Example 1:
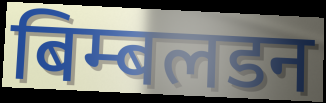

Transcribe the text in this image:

बिम्बलडन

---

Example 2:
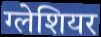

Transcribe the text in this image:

ग्‍लेशियर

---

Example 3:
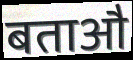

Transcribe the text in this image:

बताऔ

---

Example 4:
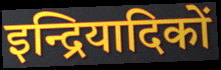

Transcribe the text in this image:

इन्द्रियादिकों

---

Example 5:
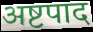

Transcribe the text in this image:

अष्टपाद